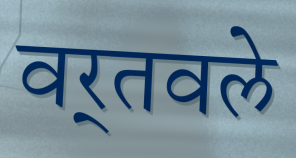
वर्तवले